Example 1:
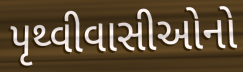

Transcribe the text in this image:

પૃથ્વીવાસીઓનો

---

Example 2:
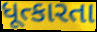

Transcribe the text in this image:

ધૂત્કારતા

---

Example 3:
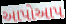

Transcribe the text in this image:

આપોઆપ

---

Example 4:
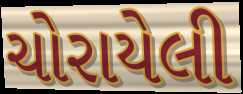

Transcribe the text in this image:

ચોરાયેલી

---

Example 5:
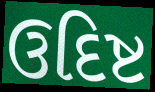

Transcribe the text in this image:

ઉદિષ્ટ